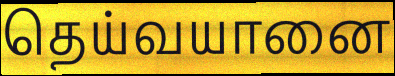
தெய்வயானை